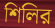
শিলির